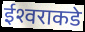
ईश्वराकडे